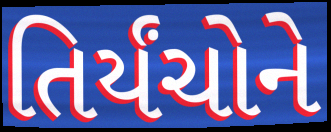
તિર્યંચોને